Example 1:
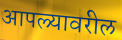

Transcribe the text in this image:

आपल्यावरील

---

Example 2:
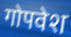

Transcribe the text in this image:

गोपवेश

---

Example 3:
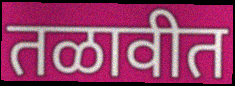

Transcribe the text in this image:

तळावीत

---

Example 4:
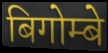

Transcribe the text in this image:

बिगोम्बे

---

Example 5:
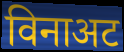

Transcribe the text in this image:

विनाअट